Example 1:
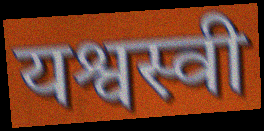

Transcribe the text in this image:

यश्वस्वी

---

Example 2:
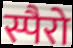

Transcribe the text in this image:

स्पैरो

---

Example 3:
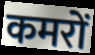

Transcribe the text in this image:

कमरों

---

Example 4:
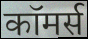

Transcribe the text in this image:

कॉमर्स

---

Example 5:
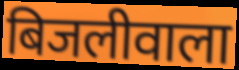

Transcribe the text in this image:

बिजलीवाला